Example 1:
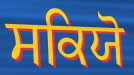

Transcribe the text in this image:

ਸਕਿਯੋ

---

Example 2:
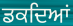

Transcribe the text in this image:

ਡਕਦਿਆਂ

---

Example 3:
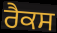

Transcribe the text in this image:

ਰੈਕਸ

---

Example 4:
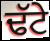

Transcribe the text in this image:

ਢੱਟੇ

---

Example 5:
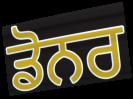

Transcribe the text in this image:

ਡੋਨਰ